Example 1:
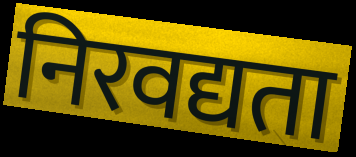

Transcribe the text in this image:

निरवद्यता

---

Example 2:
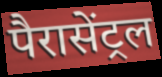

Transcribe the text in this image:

पैरासेंट्रल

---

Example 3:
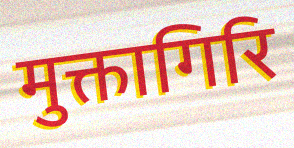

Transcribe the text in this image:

मुक्तागिरि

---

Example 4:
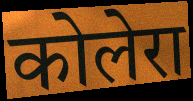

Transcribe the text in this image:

कोलेरा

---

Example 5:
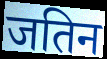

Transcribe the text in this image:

जतिन